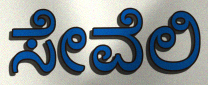
ಸೇವೆಲಿ